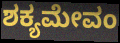
ಶಕ್ಯಮೇವಂ